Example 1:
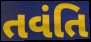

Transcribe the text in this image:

તવંતિ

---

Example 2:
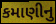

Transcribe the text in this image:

કમાણીનુ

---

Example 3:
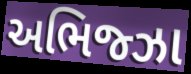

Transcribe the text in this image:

અભિજ્ઝા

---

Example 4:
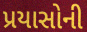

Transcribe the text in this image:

પ્રયાસોની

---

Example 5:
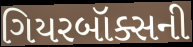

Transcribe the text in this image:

ગિયરબૉક્સની